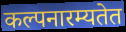
कल्पनारम्यतेत